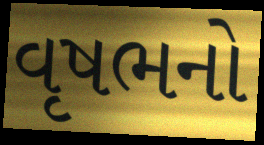
વૃષભનો